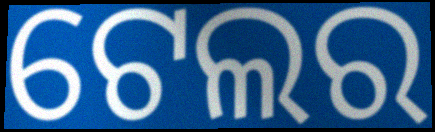
ଟେଲର